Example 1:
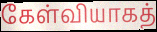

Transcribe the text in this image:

கேள்வியாகத்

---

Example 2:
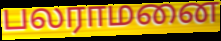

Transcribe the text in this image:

பலராமனை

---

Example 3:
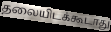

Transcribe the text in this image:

தலையிடக்கூடாது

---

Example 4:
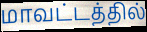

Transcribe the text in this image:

மாவட்டத்தில்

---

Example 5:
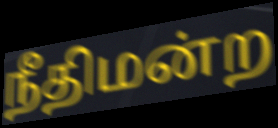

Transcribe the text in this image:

நீதிமன்ற